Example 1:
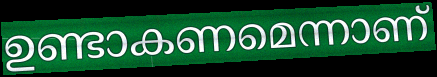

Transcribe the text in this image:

ഉണ്ടാകണമെന്നാണ്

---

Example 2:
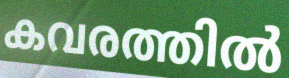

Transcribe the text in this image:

കവരത്തിൽ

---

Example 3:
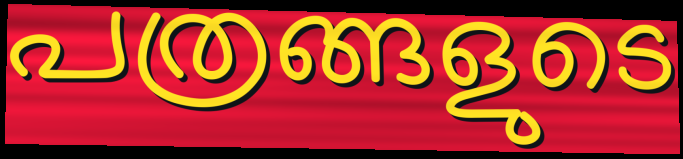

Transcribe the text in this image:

പത്രങ്ങളുടെ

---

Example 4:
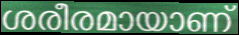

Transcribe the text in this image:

ശരീരമായാണ്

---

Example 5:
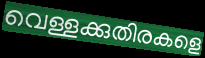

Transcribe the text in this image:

വെള്ളക്കുതിരകളെ